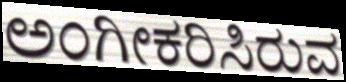
ಅಂಗೀಕರಿಸಿರುವ